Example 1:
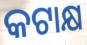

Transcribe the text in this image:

କଟାକ୍ଷ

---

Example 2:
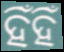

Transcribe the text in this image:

ହିଁହିଁ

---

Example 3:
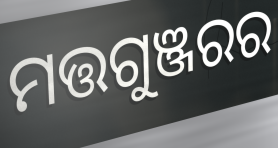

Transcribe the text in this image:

ମତ୍ତଗୁଞ୍ଜରର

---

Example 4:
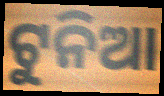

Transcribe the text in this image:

ଟୁନିଆ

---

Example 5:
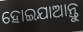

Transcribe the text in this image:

ହୋଇଯାଆନ୍ତୁ